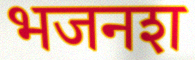
भजनश